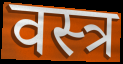
वस्त्र